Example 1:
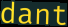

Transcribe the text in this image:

dant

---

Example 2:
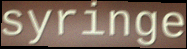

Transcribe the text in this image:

syringe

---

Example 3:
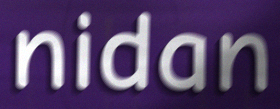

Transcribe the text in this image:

nidan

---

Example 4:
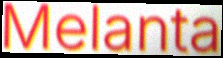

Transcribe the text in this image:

Melanta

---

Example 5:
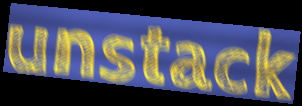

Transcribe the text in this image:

unstack